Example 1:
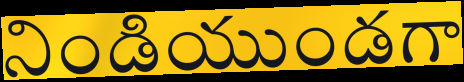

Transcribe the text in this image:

నిండియుండగా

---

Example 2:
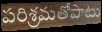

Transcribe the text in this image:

పరిశ్రమతోపాటు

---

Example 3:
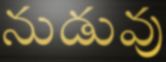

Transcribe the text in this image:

నుడువు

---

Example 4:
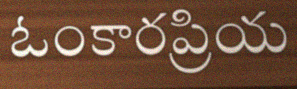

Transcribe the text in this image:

ఓంకారప్రియ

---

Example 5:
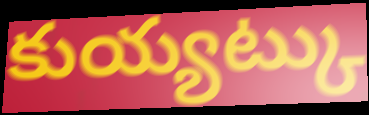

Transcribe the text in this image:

కుయ్యట్కు